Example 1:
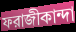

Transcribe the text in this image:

ফরাজীকান্দা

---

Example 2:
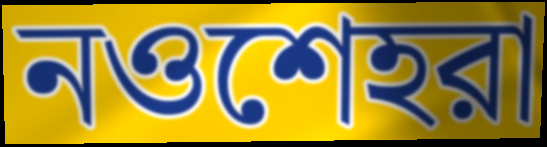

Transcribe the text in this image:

নওশেহরা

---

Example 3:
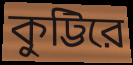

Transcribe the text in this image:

কুট্টিরে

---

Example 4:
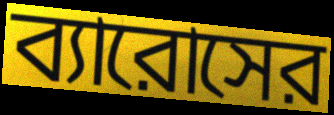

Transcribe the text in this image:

ব্যারোসের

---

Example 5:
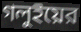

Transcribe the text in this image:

গলুইয়ের